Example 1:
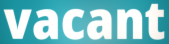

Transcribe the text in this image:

vacant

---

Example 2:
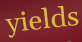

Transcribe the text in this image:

yields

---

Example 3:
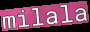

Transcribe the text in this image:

milala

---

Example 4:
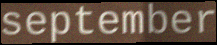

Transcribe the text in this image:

september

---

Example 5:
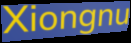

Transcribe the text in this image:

Xiongnu